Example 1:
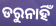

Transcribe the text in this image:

ଡରୁନାହିଁ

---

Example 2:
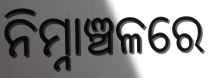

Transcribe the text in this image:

ନିମ୍ନାଞ୍ଚଳରେ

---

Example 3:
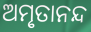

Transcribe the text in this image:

ଅମୃତାନନ୍ଦ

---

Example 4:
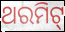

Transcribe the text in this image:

ଥରମିଟ୍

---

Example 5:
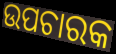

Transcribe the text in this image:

ଉପଚାରକ